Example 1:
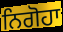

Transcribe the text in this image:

ਨਿਗੋਹਾ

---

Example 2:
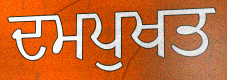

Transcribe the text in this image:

ਦਮਪੁਖਤ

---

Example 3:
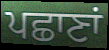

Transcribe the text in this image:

ਪਛਾਣਾਂ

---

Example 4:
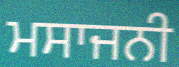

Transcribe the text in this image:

ਮਸਾਜਨੀ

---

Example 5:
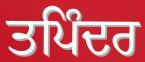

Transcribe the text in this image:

ਤਪਿੰਦਰ